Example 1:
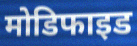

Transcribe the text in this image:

मोडिफाइड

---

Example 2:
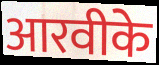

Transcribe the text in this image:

आरवीके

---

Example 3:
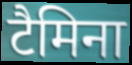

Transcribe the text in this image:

टैमिना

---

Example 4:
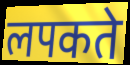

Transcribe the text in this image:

लपकते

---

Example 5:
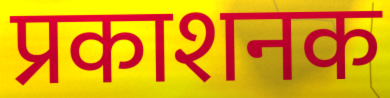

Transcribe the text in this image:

प्रकाशनक